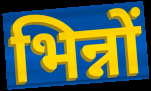
भिन्नों